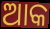
ଆକ